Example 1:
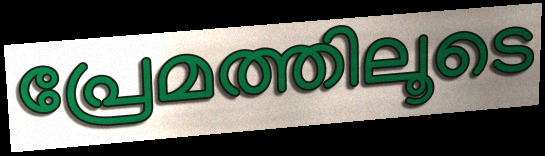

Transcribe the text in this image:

പ്രേമത്തിലൂടെ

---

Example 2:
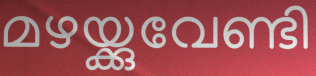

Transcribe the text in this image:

മഴയ്ക്കുവേണ്ടി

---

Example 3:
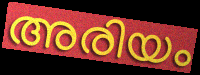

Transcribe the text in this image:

അരിയം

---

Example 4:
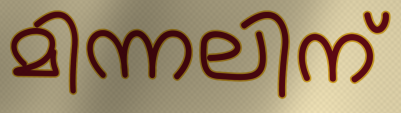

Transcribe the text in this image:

മിന്നലിന്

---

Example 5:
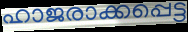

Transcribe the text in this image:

ഹാജരാക്കപ്പെട്ട